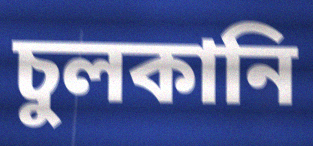
চুলকানি